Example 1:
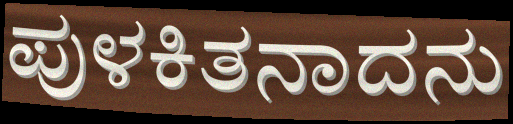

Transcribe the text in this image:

ಪುಳಕಿತನಾದನು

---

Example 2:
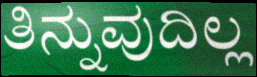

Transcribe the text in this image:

ತಿನ್ನುವುದಿಲ್ಲ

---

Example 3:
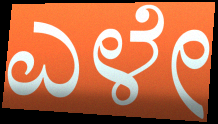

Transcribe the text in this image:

ಎಳೇ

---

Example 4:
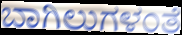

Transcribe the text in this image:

ಬಾಗಿಲುಗಳಂತೆ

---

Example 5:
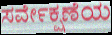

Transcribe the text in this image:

ಸರ್ವೇಕ್ಷಣೆಯ